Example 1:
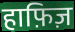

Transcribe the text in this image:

हाफ़िज़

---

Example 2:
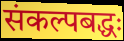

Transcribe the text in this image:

संकल्पबद्धः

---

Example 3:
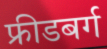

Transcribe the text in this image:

फ्रीडबर्ग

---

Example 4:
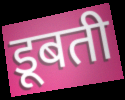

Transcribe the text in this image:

डूबती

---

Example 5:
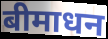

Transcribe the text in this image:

बीमाधन